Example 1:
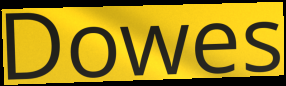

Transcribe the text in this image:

Dowes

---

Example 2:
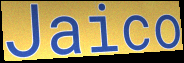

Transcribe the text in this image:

Jaico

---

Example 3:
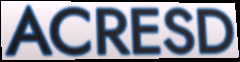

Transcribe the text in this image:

ACRESD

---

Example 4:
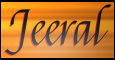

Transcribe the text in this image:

Jeeral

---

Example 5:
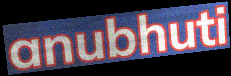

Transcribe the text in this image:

anubhuti